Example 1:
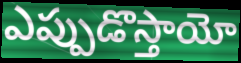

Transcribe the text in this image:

ఎప్పుడొస్తాయో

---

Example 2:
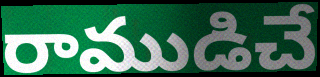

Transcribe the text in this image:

రాముడిచే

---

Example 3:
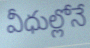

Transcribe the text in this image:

వీధుల్లోనే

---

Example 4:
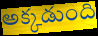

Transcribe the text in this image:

అక్కడుంది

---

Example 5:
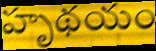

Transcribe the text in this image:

హృథయం